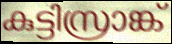
കുട്ടിസ്രാങ്ക്